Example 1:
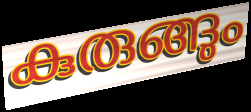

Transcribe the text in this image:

കുരുങ്ങും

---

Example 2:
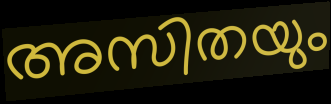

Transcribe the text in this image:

അസിതയും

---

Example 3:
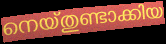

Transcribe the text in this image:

നെയ്തുണ്ടാക്കിയ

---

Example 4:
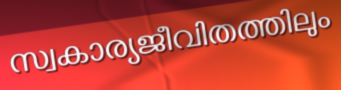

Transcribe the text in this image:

സ്വകാര്യജീവിതത്തിലും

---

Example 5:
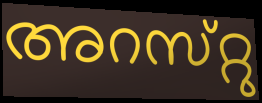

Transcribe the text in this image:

അറസ്‌റ്റു